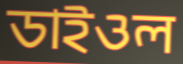
ডাইওল